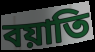
বয়াতি